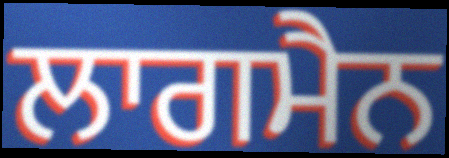
ਲਾਗਮੈਨ